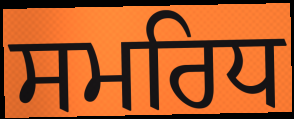
ਸਮਰਿਧ